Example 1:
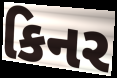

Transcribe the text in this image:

કિનર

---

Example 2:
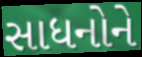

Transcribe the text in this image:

સાધનોને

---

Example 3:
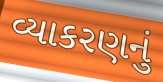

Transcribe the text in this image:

વ્યાકરણનું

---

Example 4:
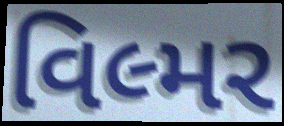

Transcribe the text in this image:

વિલ્મર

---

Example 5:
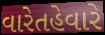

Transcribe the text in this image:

વારેતહેવારે